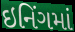
ઇનિંગમાં